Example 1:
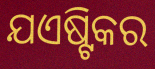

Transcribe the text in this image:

ଯଏଷ୍ଟିକର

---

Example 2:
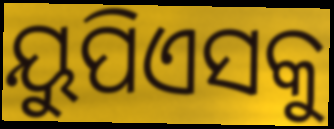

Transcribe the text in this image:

ୟୁପିଏସକୁ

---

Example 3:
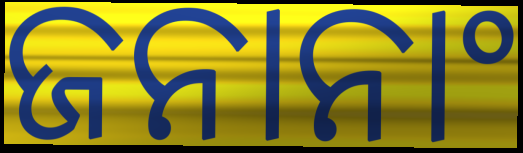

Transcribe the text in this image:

ଜନାନାଂ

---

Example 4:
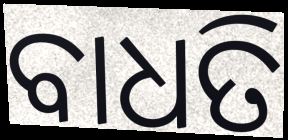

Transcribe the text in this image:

ବାଧତି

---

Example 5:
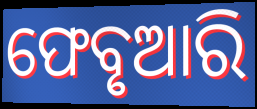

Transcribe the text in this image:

ଫେବୃଆରି